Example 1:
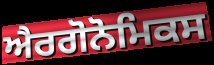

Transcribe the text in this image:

ਐਰਗੋਨੋਮਿਕਸ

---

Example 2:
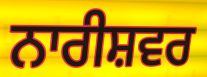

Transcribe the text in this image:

ਨਾਰੀਸ਼ਵਰ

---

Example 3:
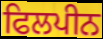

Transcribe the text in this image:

ਫਿਲਪੀਨ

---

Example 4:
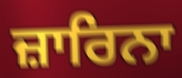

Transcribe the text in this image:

ਜ਼ਾਰਿਨਾ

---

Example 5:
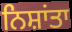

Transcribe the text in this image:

ਨਿਸ਼ਾਂਤਾ